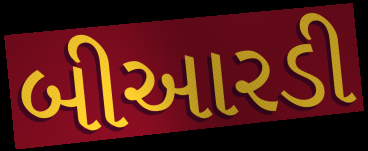
બીઆરડી